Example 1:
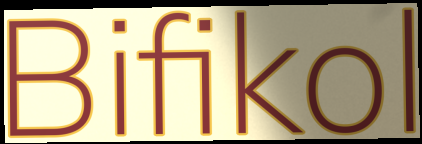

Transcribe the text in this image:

Bifikol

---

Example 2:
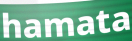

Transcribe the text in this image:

hamata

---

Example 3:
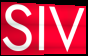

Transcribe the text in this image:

SIV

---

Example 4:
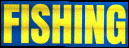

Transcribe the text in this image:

FISHING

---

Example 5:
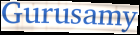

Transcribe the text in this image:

Gurusamy